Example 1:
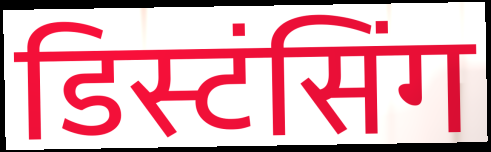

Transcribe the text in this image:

डिस्टंसिंग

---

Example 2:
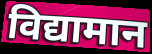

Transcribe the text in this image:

विद्यामान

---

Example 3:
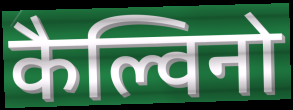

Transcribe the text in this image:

कैल्विनो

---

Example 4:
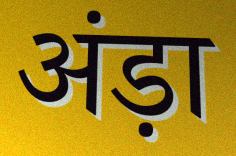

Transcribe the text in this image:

अंड़ा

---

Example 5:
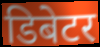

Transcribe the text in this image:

डिबेटर